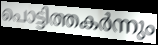
പൊട്ടിത്തകർന്നും